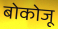
बोकोजू